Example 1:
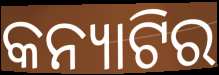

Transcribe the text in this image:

କନ୍ୟାଟିର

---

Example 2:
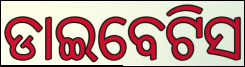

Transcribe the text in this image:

ଡାଇବେଟିସ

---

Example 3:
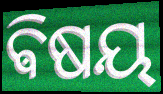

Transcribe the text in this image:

ଵିଷୟ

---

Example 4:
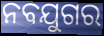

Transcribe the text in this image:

ନବଯୁଗର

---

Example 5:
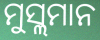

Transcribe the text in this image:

ମୁସ୍ଲମାନ